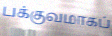
பக்குவமாகப்